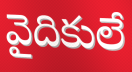
వైదికులే